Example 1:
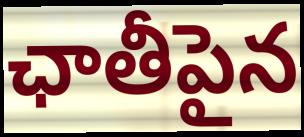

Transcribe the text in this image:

ఛాతీపైన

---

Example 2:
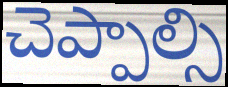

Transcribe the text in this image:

చెప్పాల్సి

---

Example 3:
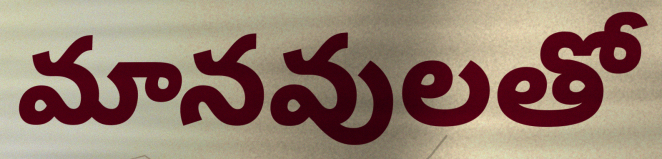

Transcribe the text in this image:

మానవులతో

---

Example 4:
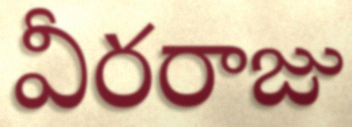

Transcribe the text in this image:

వీరరాజు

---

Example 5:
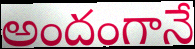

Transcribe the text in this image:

అందంగానే